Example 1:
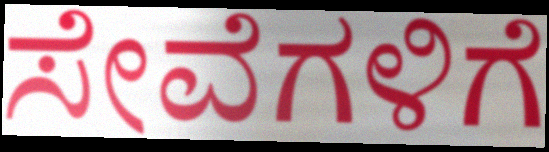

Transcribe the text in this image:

ಸೇವೆಗಳಿಗೆ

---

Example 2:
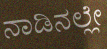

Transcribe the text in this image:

ನಾಡಿನಲ್ಲೇ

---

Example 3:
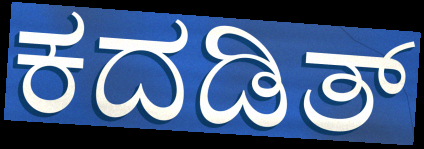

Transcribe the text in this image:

ಕದಡಿತ್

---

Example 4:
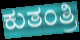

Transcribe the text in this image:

ಕುತಂತ್ರಿ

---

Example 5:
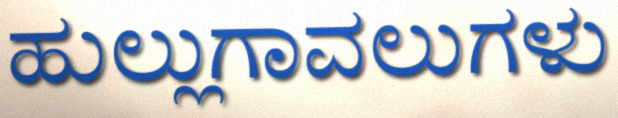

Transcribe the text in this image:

ಹುಲ್ಲುಗಾವಲುಗಳು